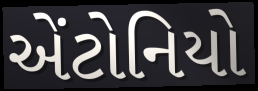
એંટોનિયો